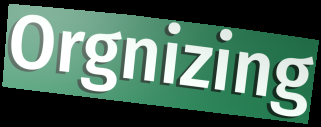
Orgnizing